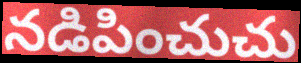
నడిపించుచు